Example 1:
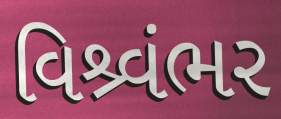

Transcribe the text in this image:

વિશ્ર્વંભર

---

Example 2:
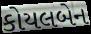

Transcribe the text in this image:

કોયલબેન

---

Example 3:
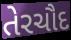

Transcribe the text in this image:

તેરચૌદ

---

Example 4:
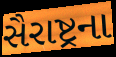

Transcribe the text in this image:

સૈરાષ્ટ્રના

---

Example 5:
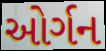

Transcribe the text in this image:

ઓર્ગન